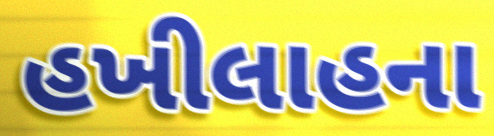
હખીલાહના